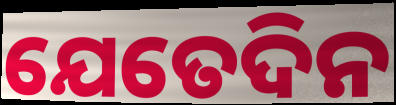
ଯେତେଦିନ